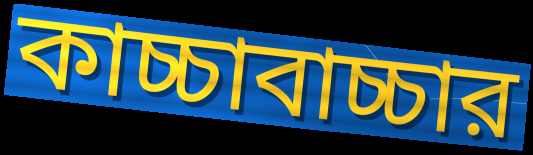
কাচ্চাবাচ্চার